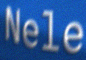
Nele